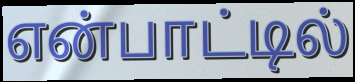
என்பாட்டில்